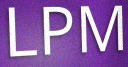
LPM